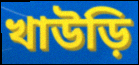
খাউড়ি